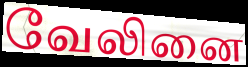
வேலினை